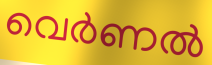
വെർണൽ